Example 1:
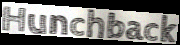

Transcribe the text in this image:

Hunchback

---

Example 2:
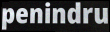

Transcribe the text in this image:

penindru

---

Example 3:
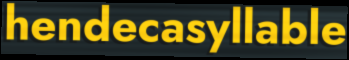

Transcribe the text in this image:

hendecasyllable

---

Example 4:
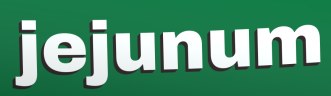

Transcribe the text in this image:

jejunum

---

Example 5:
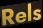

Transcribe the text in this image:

Rels